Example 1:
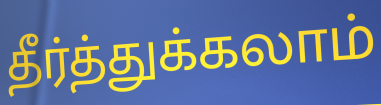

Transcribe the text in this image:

தீர்த்துக்கலாம்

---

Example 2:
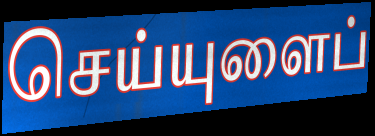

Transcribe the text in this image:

செய்யுளைப்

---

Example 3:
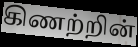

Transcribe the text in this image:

கிணற்றின்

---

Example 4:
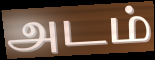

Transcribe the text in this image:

அடம்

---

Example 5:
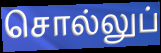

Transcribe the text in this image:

சொல்லுப்